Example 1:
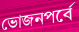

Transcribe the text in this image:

ভোজনপর্বে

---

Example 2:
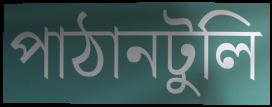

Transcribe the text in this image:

পাঠানটুলি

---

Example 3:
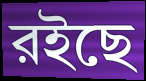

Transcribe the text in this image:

রইছে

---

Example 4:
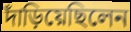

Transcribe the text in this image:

দাঁড়িয়েছিলেন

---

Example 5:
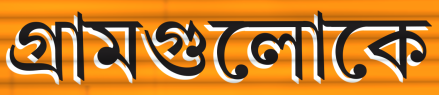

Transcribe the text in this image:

গ্রামগুলোকে